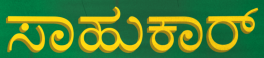
ಸಾಹುಕಾರ್